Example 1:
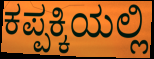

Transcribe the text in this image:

ಕಪ್ಪಕ್ಕಿಯಲ್ಲಿ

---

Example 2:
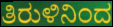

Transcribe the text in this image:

ತಿರುಳಿನಿಂದ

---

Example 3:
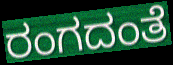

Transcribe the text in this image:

ರಂಗದಂತೆ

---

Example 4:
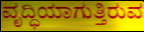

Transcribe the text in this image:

ವೃದ್ಧಿಯಾಗುತ್ತಿರುವ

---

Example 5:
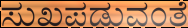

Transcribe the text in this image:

ಸುಖಪಡುವಂತೆ